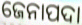
ଜେନାପଦା